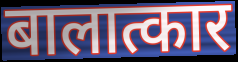
बालात्कार